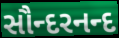
સૌન્દરનન્દ